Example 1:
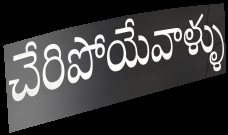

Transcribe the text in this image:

చేరిపోయేవాళ్ళు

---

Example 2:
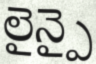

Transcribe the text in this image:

లైన్పై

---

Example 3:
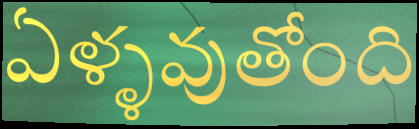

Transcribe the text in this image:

ఏళ్ళవుతోంది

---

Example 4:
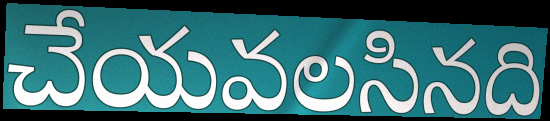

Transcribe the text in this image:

చేయవలసినది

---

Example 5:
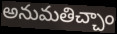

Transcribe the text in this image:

అనుమతిచ్చాం